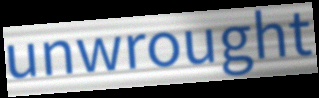
unwrought